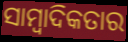
ସାମ୍ୱାଦିକତାର